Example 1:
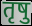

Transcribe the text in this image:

तृषु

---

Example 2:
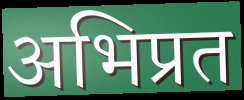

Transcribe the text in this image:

अभिप्रत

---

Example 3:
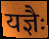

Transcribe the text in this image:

यज्ञैः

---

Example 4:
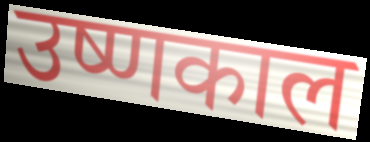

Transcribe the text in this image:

उष्णकाल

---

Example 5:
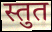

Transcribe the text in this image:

स्तुत